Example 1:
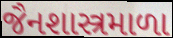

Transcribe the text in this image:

જૈનશાસ્ત્રમાળા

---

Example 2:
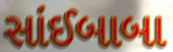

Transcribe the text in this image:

સાંઈબાબા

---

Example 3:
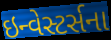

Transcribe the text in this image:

ઇન્વેસ્ટર્સના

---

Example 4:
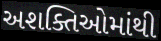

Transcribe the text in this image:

અશક્તિઓમાંથી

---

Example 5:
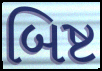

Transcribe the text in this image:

બિષ્ટ